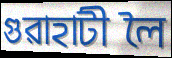
গুৱাহাটীলৈ